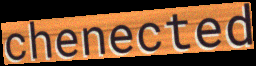
chenected